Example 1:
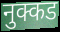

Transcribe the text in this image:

नुक्कड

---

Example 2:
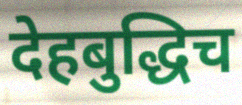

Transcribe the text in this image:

देहबुद्धिच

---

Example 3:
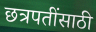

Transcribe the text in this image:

छत्रपतींसाठी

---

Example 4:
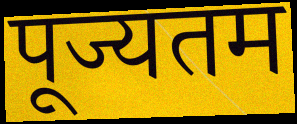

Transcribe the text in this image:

पूज्यतम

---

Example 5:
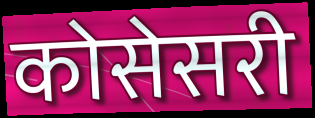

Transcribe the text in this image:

कोसेसरी